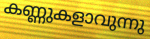
കണ്ണുകളാവുന്നു